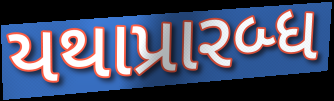
યથાપ્રારબ્ધ